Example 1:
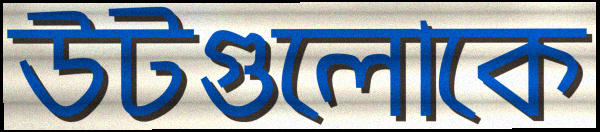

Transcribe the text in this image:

উটগুলোকে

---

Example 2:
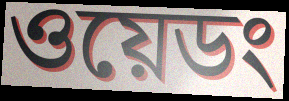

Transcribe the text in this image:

ওয়েডং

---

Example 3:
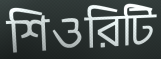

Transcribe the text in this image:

শিওরিটি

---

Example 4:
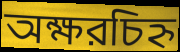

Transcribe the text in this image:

অক্ষরচিহ্ন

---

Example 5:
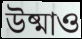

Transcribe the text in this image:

উষ্মাও